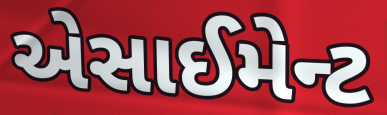
એસાઈમેન્ટ